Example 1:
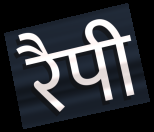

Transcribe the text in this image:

रैपी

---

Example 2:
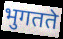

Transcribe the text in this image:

भुगतते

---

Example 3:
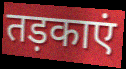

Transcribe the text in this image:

तड़काएं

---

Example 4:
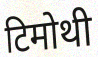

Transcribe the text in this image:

टिमोथी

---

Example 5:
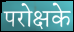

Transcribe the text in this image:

परोक्षके